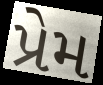
પ્રેમ